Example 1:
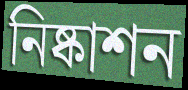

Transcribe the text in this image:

নিষ্কাশন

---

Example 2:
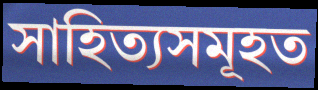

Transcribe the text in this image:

সাহিত্যসমূহত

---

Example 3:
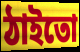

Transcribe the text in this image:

ঠাইতো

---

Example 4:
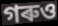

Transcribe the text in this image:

গৰুও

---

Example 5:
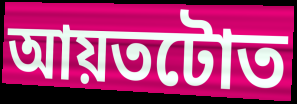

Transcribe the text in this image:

আয়তটোত